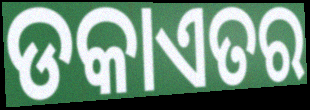
ଡକାଏତର